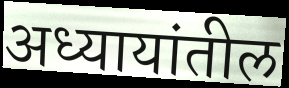
अध्यायांतील